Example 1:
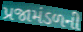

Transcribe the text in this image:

પ્રજામંડળની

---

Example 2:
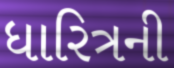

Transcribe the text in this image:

ધારિત્રની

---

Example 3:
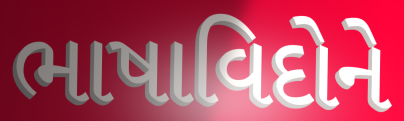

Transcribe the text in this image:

ભાષાવિદોને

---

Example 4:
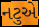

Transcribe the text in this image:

નટુએ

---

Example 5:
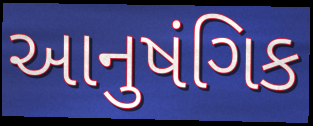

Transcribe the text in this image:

આનુષંગિક